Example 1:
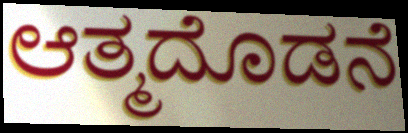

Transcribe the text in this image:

ಆತ್ಮದೊಡನೆ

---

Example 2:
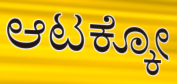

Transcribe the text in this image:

ಆಟಕ್ಕೋ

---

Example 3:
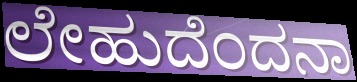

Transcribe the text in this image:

ಲೇಹುದೆಂದನಾ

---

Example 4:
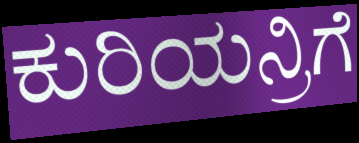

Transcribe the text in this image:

ಕುರಿಯನ್ರಿಗೆ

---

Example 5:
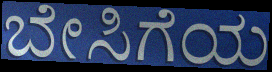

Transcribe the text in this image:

ಬೇಸಿಗೆಯ